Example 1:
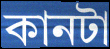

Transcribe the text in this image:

কানটা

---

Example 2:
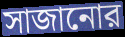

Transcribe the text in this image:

সাজানোর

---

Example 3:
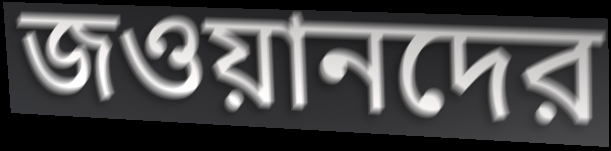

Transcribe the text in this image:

জওয়ানদের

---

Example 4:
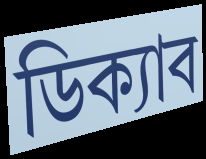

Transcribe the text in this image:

ডিক্যাব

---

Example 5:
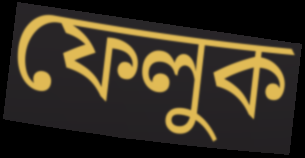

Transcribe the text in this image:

ফেলুক